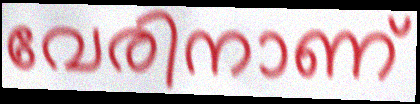
വേരിനാണ്